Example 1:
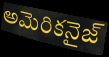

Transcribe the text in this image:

అమెరికనైజ్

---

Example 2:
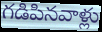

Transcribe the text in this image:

గడిపినవాళ్లు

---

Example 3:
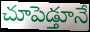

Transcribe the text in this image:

చూపెడ్తూనే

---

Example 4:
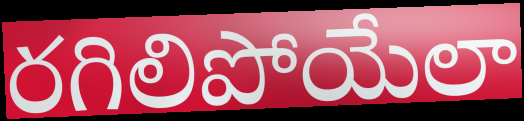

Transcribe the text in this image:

రగిలిపోయేలా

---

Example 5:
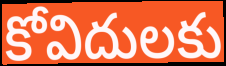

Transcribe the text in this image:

కోవిదులకు